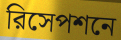
রিসেপশনে